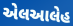
એલઆલેહ